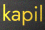
kapil